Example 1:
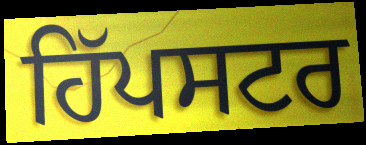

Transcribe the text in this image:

ਹਿੱਪਸਟਰ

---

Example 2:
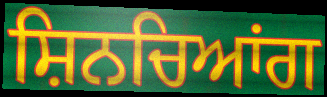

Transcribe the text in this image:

ਸ਼ਿਨਚਿਆਂਗ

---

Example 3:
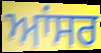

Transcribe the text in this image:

ਆਂਸਰ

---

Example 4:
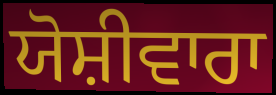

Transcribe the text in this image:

ਯੋਸ਼ੀਵਾਰਾ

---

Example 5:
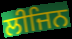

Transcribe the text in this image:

ਲੀਜਿਨ